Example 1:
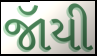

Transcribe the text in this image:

જૉયી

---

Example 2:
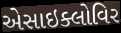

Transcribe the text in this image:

એસાઇક્લોવિર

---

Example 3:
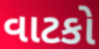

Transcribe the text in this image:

વાટકો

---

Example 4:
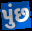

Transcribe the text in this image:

પુંછ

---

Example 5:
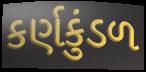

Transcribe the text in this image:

કર્ણકુંડળ